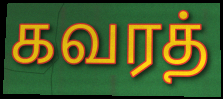
கவரத்